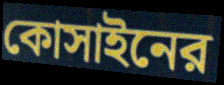
কোসাইনের